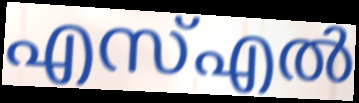
എസ്എൽ